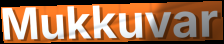
Mukkuvar